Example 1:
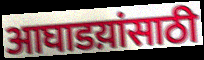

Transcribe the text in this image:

आघाडय़ांसाठी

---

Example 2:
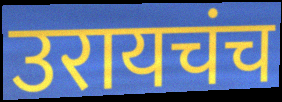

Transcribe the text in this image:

उरायचंच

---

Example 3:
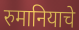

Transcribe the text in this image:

रुमानियाचे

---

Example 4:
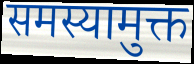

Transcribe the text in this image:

समस्यामुक्त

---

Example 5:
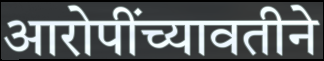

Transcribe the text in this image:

आरोपींच्यावतीने